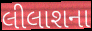
લીલાશના